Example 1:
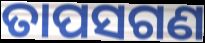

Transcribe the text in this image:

ତାପସଗଣ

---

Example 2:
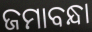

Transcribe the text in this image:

ଜମାବନ୍ଧା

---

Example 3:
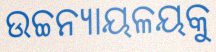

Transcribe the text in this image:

ଉଚ୍ଚନ୍ୟାୟଳୟକୁ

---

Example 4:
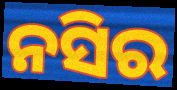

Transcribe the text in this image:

ନସିର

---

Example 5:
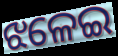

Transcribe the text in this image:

ଝଳେଇ